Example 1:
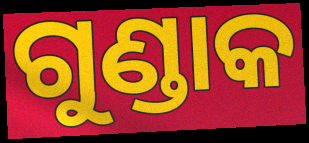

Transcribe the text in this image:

ଗୁଣ୍ଡାକ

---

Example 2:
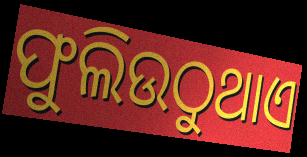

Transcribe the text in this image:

ଫୁଲିଉଠୁଥାଏ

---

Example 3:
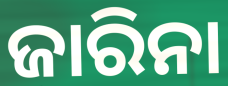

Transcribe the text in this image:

ଜାରିନା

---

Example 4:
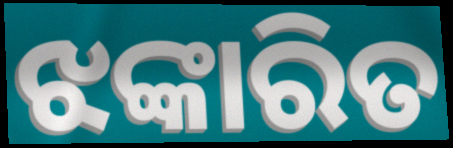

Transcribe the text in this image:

ଝଙ୍କାରିତ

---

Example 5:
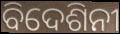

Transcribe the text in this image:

ବିଦେଶିନୀ